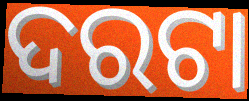
ଦରଟା